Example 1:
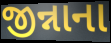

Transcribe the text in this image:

જીન્નાના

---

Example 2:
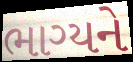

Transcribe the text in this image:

ભાગ્યને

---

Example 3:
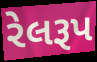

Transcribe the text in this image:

રેલરૂપ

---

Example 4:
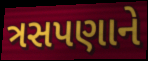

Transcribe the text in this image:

ત્રસપણાને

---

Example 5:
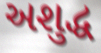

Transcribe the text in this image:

અશુદ્ધ